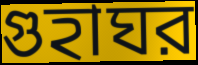
গুহাঘর